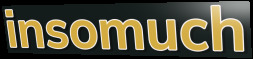
insomuch